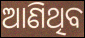
ଆଣିଥିବ